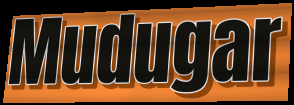
Mudugar